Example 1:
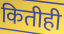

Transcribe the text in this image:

कितीही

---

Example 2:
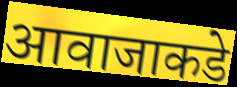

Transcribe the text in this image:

आवाजाकडे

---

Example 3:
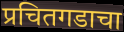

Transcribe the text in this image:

प्रचितगडाचा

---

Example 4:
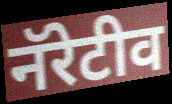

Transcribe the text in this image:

नॅरेटीव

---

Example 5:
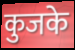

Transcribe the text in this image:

कुजके